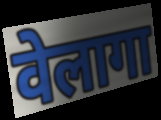
वेलागा